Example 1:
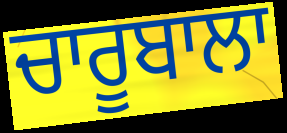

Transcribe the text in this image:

ਚਾਰੂਬਾਲਾ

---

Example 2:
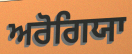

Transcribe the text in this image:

ਅਰੋਗਿਯਾ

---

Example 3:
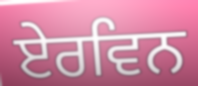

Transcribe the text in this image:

ਏਰਵਿਨ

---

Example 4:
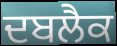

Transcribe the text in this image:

ਦਬਲੈਕ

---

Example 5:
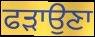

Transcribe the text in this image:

ਫੜਾਉਣਾ